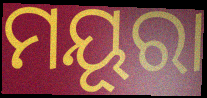
ମୟୂରା